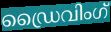
ഡ്രൈവിംഗ്